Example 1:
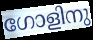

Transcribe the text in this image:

ഗോളിനു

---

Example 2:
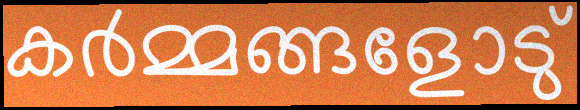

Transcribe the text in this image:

കർമ്മങ്ങളോടു്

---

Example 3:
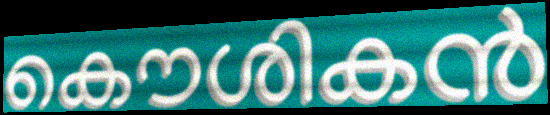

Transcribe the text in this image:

കൌശികൻ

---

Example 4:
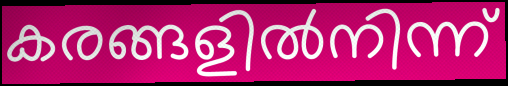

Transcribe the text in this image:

കരങ്ങളിൽനിന്ന്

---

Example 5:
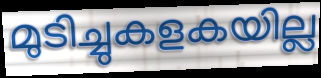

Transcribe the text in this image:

മുടിച്ചുകളകയില്ല